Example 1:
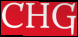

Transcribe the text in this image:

CHG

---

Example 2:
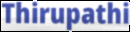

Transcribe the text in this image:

Thirupathi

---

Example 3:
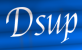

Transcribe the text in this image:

Dsup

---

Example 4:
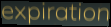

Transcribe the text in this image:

expiration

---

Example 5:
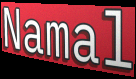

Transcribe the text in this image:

Namal